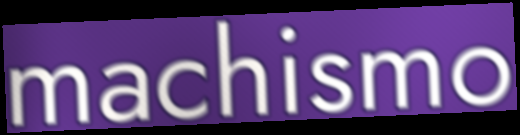
machismo